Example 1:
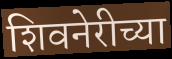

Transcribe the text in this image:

शिवनेरीच्या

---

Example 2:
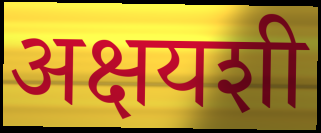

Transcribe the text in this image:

अक्षयशी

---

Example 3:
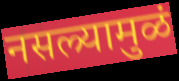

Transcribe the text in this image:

नसल्यामुळं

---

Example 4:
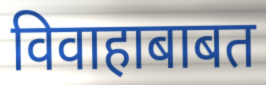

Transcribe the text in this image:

विवाहाबाबत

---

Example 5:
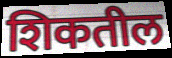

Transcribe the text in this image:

शिकतील